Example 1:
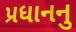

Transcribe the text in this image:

પ્રધાનનુ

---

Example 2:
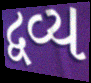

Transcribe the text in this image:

દ્વવ્ય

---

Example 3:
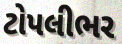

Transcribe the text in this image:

ટોપલીભર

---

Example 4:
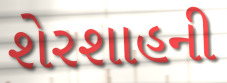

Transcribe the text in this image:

શેરશાહની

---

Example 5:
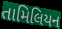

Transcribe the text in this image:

તામિલિયન